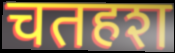
चतहश